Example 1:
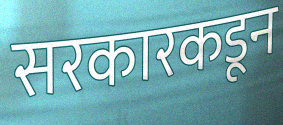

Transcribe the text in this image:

सरकारकडून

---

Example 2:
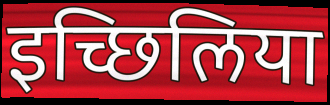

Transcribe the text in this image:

इच्छिलिया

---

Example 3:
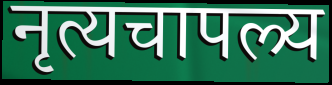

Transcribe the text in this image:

नृत्यचापल्य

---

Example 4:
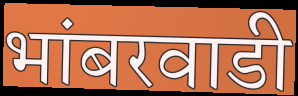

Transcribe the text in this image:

भांबरवाडी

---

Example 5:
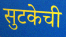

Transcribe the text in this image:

सुटकेची